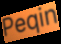
Peqin